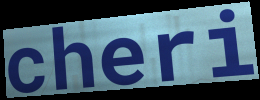
cheri